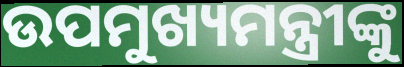
ଉପମୁଖ୍ୟମନ୍ତ୍ରୀଙ୍କୁ